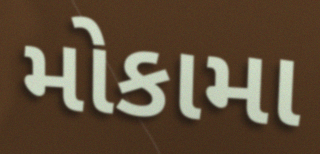
મોકામા